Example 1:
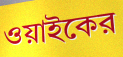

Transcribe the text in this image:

ওয়াইকের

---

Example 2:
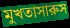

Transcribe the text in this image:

মুখতাসারুস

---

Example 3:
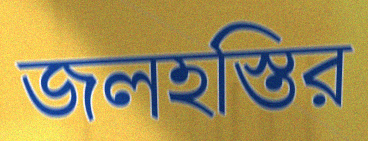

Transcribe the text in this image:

জলহস্তির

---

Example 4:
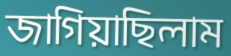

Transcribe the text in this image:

জাগিয়াছিলাম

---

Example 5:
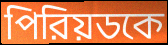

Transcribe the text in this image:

পিরিয়ডকে